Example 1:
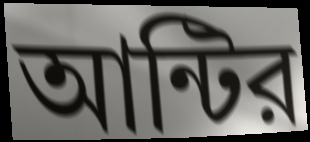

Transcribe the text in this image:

আন্টির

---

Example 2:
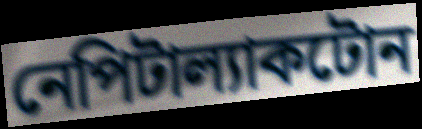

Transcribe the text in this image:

নেপিটাল্যাকটোন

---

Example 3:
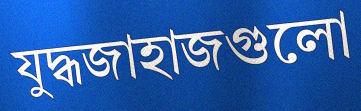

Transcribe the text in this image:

যুদ্ধজাহাজগুলো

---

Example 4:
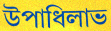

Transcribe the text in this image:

উপাধিলাভ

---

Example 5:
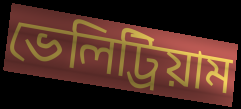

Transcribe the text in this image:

ভেলিট্রিয়াম